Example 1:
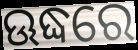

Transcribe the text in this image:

ଊଦ୍ଧରେ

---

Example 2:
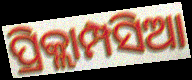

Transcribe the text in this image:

ପ୍ରିକ୍ଲାମ୍ପସିଆ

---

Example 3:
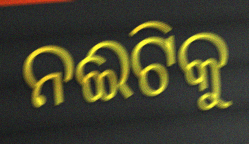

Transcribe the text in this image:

ନଈଟିକୁ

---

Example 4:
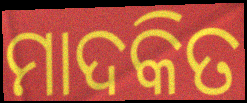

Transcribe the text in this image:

ମାଦକିତ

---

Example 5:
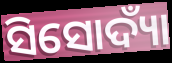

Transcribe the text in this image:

ସିସୋଦ୍ୟାଁ